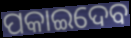
ପକାଇଦେବ